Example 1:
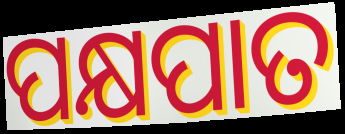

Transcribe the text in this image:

ପକ୍ଷପାତ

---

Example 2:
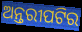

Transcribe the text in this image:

ଅନ୍ତରୀପଟିର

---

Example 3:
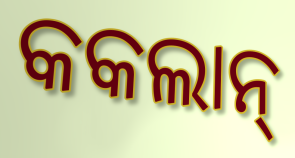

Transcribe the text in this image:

କକଲାନ୍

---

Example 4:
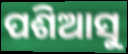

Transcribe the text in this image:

ପଶିଆସୁ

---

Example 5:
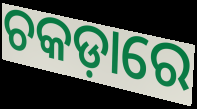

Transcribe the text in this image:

ଚକଡ଼ାରେ